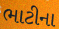
ભાટીના